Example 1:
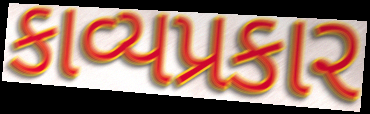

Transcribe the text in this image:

કાવ્યપ્રકાર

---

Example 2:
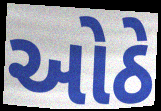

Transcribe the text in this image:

ઓઠે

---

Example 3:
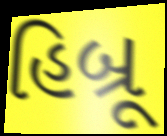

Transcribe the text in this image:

હિબ્રૂ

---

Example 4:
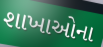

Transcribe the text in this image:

શાખાઓના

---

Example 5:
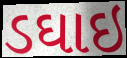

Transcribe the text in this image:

ડઘાઇ